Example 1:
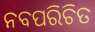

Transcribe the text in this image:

ନବପରିଚିତ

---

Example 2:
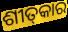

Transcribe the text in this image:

ଶୀତ୍‌କାର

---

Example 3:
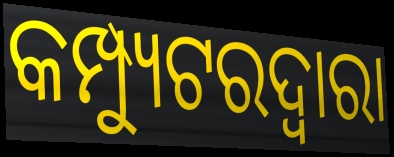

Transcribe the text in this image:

କମ୍ପ୍ୟୁଟରଦ୍ୱାରା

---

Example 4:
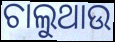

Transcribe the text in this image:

ଚାଲୁଥାଉ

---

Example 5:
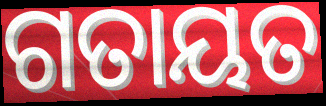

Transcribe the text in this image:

ଗତାୟତ